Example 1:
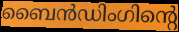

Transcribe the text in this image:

ബൈൻഡിംഗിന്റെ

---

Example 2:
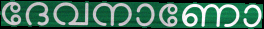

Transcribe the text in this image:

ദേവനാണോ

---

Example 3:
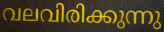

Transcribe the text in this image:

വലവിരിക്കുന്നു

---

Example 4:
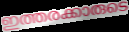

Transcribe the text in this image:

ഇത്തരക്കാരുടെ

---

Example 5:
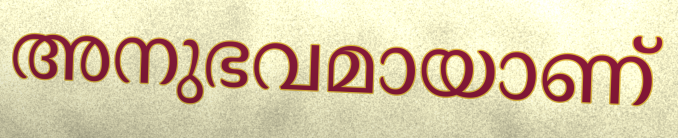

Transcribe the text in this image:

അനുഭവമായാണ്